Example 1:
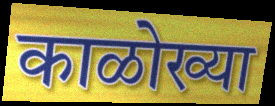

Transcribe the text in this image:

काळोख्या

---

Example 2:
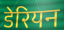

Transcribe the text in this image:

डेरियन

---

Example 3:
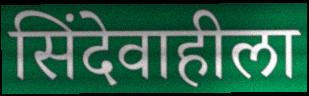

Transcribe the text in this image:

सिंदेवाहीला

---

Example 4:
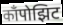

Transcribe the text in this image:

काँपोझिट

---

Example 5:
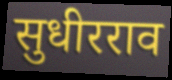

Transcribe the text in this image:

सुधीरराव